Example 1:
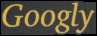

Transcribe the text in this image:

Googly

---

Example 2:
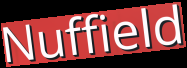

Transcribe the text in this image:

Nuffield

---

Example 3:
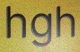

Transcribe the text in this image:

hgh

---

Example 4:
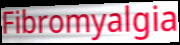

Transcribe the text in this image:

Fibromyalgia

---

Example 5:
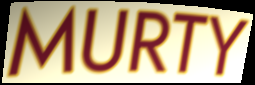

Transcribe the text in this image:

MURTY